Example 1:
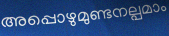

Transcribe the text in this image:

അപ്പൊഴുമുണ്ടനല്പമാം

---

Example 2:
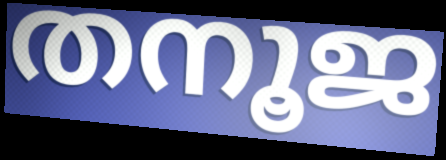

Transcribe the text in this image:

തനൂജ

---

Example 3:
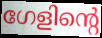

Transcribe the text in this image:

ഗേളിന്റെ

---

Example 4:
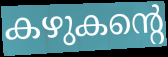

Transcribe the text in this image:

കഴുകന്റെ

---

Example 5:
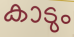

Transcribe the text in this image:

കാടും